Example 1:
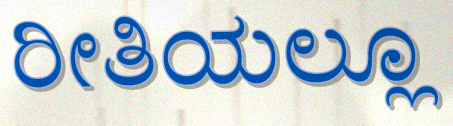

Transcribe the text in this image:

ರೀತಿಯಲ್ಲೂ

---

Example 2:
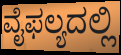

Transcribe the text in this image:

ವೈಫಲ್ಯದಲ್ಲಿ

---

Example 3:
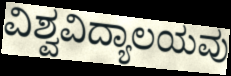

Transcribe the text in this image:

ವಿಶ್ವವಿದ್ಯಾಲಯವು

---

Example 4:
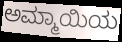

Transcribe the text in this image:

ಅಮ್ಮಾಯಿಯ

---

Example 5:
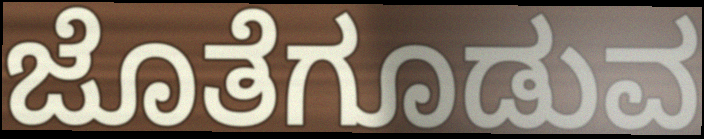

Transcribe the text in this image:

ಜೊತೆಗೂಡುವ